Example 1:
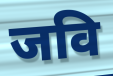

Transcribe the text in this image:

जवि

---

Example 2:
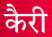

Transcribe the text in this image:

कैरी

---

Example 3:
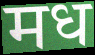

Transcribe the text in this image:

मध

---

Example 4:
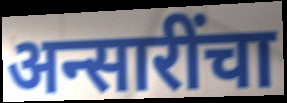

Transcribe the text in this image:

अन्सारींचा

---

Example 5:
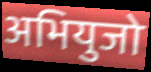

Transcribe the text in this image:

अभियुजो